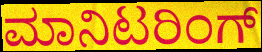
ಮಾನಿಟರಿಂಗ್